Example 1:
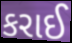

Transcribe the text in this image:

કરાઈ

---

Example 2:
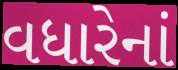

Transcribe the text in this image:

વધારેનાં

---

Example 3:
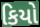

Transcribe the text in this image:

કિયો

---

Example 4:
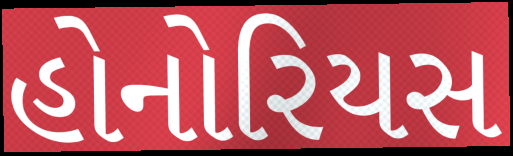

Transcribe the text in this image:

હોનોરિયસ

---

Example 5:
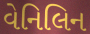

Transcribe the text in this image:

વેનિલિન